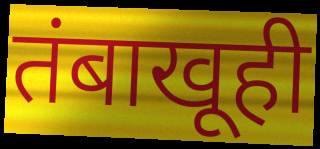
तंबाखूही